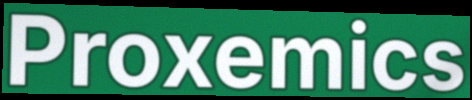
Proxemics